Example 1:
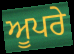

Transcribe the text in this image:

ਅੂਪਰੇ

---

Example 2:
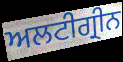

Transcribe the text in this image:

ਅਲਟੀਗ੍ਰੀਨ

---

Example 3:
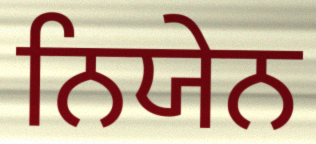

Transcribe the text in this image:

ਨਿਯੇਨ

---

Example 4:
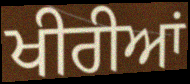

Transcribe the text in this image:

ਖੀਰੀਆਂ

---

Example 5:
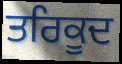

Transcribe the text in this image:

ਤਰਿਕੂਦ